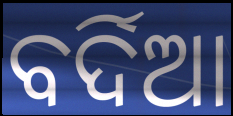
ବର୍ଦିଆ